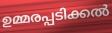
ഉമ്മരപ്പടിക്കൽ